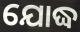
ଯୋଦ୍ଧ